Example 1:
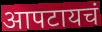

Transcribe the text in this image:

आपटायचं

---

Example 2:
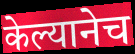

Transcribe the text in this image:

केल्यानेच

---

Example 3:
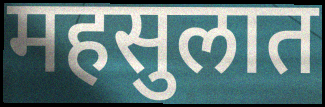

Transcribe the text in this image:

महसुलात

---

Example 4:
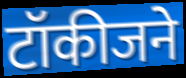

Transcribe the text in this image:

टॉकीजने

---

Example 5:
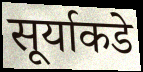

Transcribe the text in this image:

सूर्याकडे